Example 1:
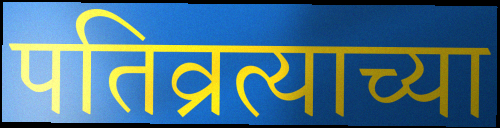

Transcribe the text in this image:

पतिव्रत्याच्या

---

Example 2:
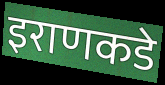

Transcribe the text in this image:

इराणकडे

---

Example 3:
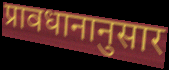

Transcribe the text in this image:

प्रावधानानुसार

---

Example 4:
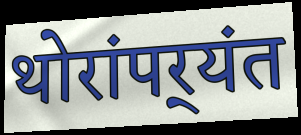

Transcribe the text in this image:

थोरांपर्यंत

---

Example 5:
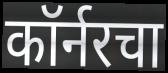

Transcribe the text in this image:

कॉर्नरचा